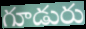
గూడురు